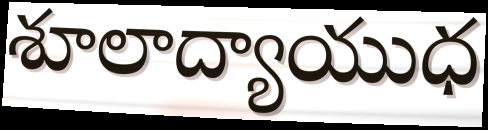
శూలాద్యాయుధ